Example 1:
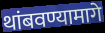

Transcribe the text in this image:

थांबवण्यामागे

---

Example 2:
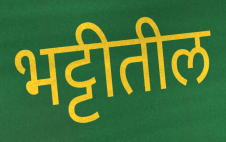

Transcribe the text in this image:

भट्टीतील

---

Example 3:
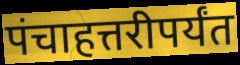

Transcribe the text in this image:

पंचाहत्तरीपर्यंत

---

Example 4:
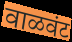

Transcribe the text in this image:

वाळवंट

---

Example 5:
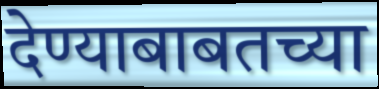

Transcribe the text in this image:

देण्याबाबतच्या